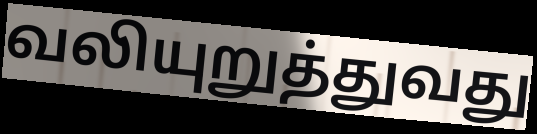
வலியுறுத்துவது